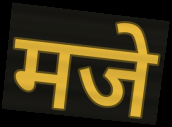
मजे